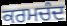
ਕਰਮਚੰਦ